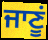
ਜਾਣੂਂ